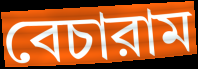
বেচারাম